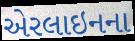
એરલાઇનના